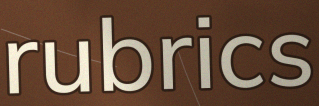
rubrics